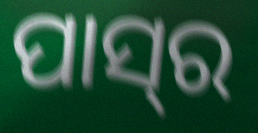
ପାସ୍‍ର